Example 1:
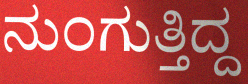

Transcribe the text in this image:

ನುಂಗುತ್ತಿದ್ದ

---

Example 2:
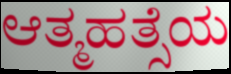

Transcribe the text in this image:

ಆತ್ಮಹತ್ಸೆಯ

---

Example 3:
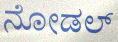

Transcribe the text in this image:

ನೋಡಲ್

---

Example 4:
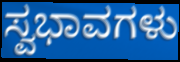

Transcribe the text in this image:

ಸ್ವಭಾವಗಳು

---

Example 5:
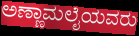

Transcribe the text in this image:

ಅಣ್ಣಾಮಲೈಯವರು